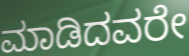
ಮಾಡಿದವರೇ